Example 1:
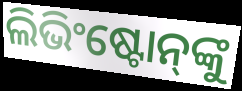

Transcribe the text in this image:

ଲିଭିଂଷ୍ଟୋନ୍‌ଙ୍କୁ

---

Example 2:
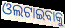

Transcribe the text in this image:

ଓଲଟାଇବାକୁ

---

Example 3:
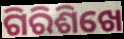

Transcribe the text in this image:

ଗିରିଶିଖେ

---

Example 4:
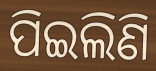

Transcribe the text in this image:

ପିଇଲିଣି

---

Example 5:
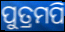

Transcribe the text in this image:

ପୁତ୍ରମପି